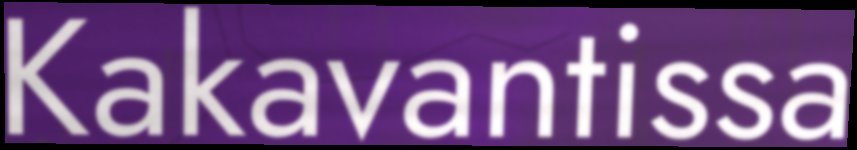
Kakavantissa